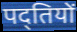
पद्तियों